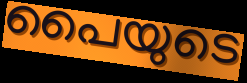
പൈയുടെ